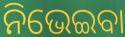
ନିଭେଇବା